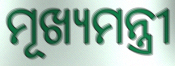
ମୂଖ୍ୟମନ୍ତ୍ରୀ